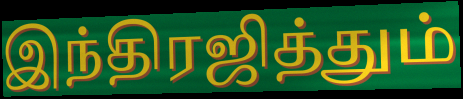
இந்திரஜித்தும்